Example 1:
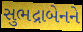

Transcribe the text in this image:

સુભદ્રાબેનને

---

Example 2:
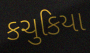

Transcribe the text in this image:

કચુકિયા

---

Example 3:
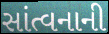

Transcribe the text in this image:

સાંત્વનાની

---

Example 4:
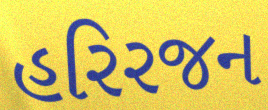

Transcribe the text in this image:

હરિરજન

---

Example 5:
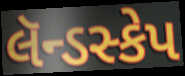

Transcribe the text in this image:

લૅન્ડસ્કેપ